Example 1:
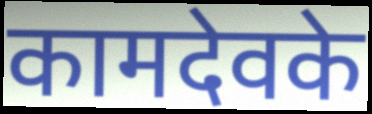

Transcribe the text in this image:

कामदेवके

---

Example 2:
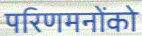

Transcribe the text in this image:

परिणमनोंको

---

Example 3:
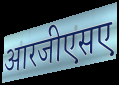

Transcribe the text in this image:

आरजीएसए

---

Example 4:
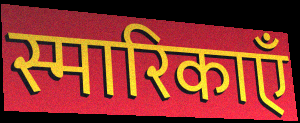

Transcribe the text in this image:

स्मारिकाएँ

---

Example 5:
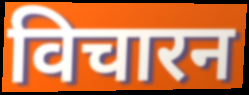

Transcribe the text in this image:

विचारन